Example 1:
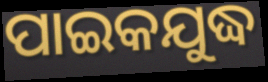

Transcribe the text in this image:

ପାଇକଯୁଦ୍ଧ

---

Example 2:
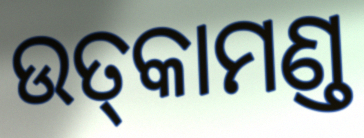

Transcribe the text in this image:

ଉତ୍‌କାମଣ୍ଡ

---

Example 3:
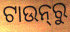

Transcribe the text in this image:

ଟାଉନ୍‌ରୁ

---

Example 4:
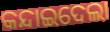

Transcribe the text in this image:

କନ୍ଦାଇଦେଲା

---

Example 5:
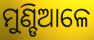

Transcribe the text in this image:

ମୁଣ୍ଡିଆଳେ